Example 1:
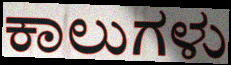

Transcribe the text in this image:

ಕಾಲುಗಳು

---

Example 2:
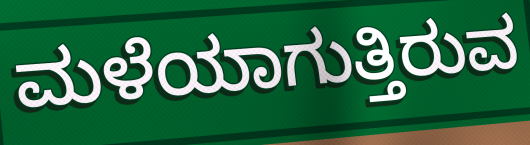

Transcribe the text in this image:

ಮಳೆಯಾಗುತ್ತಿರುವ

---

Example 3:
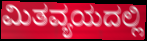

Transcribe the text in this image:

ಮಿತವ್ಯಯದಲ್ಲಿ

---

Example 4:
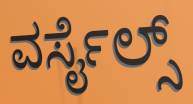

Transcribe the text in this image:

ವರ್ಸೈಲ್ಸ್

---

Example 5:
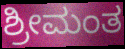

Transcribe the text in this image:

ಶ್ರೀಮಂತ